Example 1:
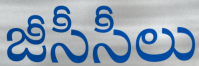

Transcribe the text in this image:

జీసీసీలు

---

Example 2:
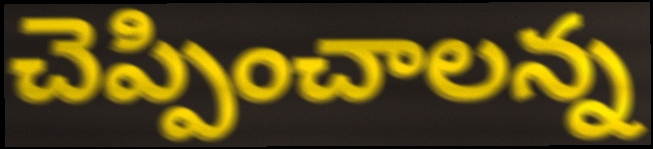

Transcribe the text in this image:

చెప్పించాలన్న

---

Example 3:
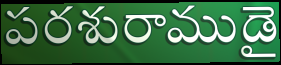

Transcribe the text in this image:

పరశురాముడై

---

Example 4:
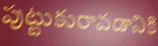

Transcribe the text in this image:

పుట్టుకురావడానికి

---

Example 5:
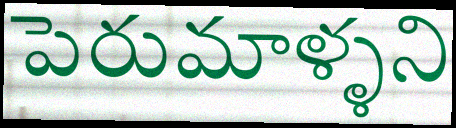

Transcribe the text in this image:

పెరుమాళ్ళని